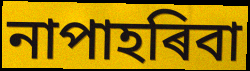
নাপাহৰিবা